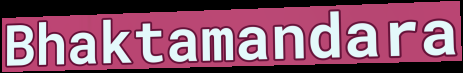
Bhaktamandara